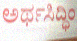
ಅರ್ಥಸಿದ್ಧಿಂ